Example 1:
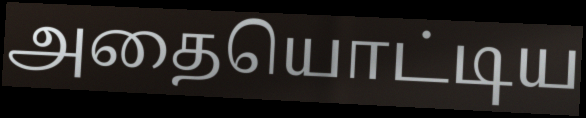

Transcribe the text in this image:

அதையொட்டிய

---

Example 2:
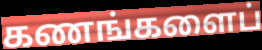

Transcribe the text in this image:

கணங்களைப்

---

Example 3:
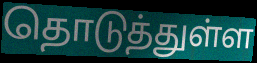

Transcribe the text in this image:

தொடுத்துள்ள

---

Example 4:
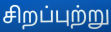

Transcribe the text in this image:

சிறப்புற்று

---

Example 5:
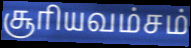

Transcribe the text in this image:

சூரியவம்சம்